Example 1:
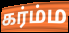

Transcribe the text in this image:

கர்ம்ம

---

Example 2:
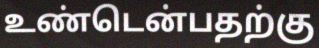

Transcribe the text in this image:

உண்டென்பதற்கு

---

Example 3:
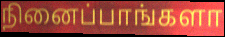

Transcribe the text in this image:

நினைப்பாங்களா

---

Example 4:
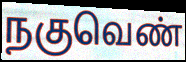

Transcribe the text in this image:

நகுவெண்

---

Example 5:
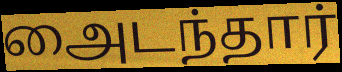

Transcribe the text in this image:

அைடந்தார்